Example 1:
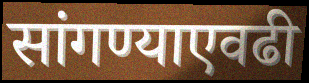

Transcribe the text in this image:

सांगण्याएवढी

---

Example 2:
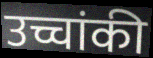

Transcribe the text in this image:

उच्चांकी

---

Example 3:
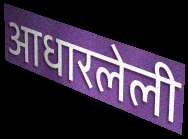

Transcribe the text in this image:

आधारलेली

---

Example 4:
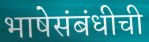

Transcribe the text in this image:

भाषेसंबंधीची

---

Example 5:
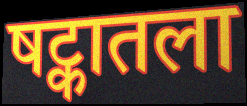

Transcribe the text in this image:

षट्कातला